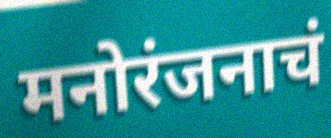
मनोरंजनाचं